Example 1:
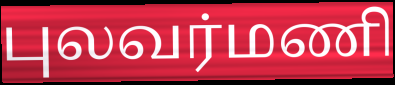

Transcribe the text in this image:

புலவர்மணி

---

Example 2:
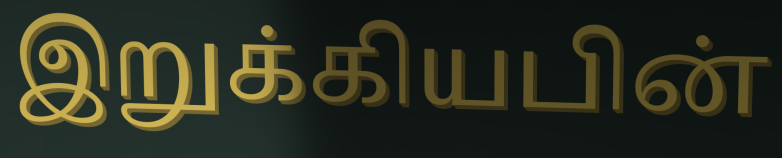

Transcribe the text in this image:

இறுக்கியபின்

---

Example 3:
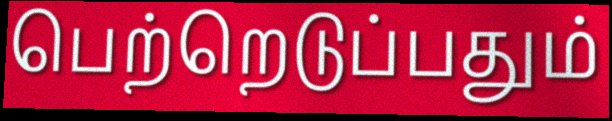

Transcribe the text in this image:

பெற்றெடுப்பதும்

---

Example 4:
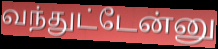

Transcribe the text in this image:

வந்துட்டேன்னு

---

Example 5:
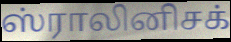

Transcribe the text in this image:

ஸ்ராலினிசக்